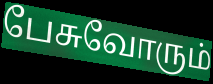
பேசுவோரும்